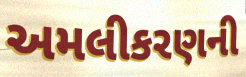
અમલીકરણની